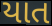
યાત